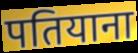
पतियाना